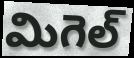
మిగెల్